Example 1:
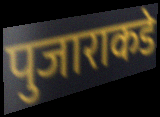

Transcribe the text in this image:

पुजाराकडे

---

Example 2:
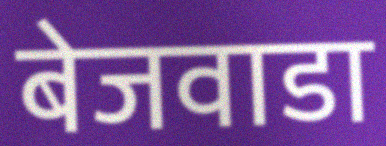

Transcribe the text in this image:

बेजवाडा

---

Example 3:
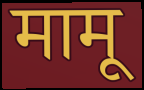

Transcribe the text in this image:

मामू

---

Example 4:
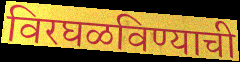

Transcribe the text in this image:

विरघळविण्याची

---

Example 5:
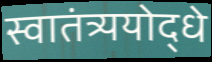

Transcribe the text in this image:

स्वातंत्र्ययोद्धे